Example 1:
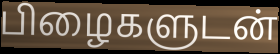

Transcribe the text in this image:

பிழைகளுடன்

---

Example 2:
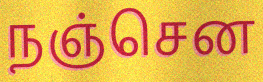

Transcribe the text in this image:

நஞ்சென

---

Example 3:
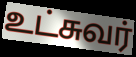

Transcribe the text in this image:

உட்சுவர்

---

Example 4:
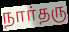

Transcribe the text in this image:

நார்தரு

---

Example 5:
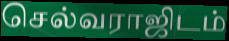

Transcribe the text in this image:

செல்வராஜிடம்